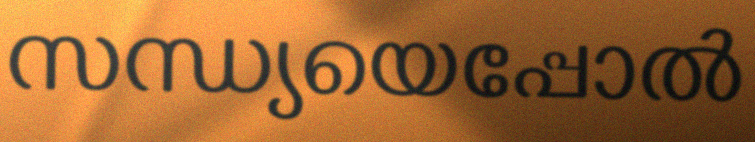
സന്ധ്യയെപ്പോൽ